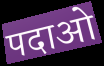
पदाओ